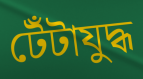
টেঁটাযুদ্ধ